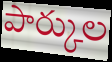
పార్కుల